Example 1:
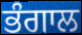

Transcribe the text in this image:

ਭੰਗਾਲ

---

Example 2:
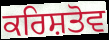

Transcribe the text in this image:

ਕਰਿਸ਼ਤੋਵ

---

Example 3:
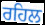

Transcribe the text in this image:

ਰਹਿਲ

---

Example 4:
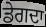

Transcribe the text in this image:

ਡੇਗਦਾ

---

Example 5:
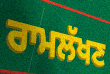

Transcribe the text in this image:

ਰਾਮਲੱਖਣ